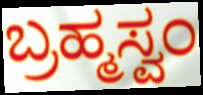
ಬ್ರಹ್ಮಸ್ವಂ